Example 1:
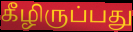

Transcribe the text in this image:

கீழிருப்பது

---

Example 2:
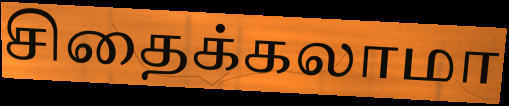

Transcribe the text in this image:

சிதைக்கலாமா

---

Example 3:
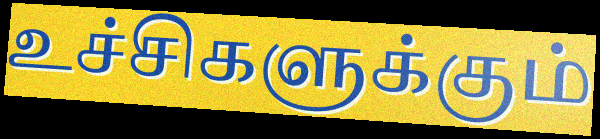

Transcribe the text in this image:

உச்சிகளுக்கும்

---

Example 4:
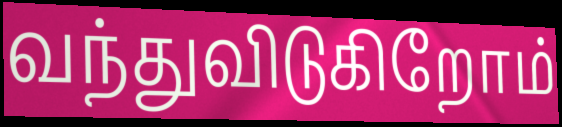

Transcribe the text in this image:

வந்துவிடுகிறோம்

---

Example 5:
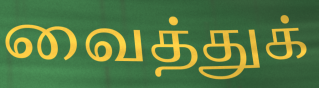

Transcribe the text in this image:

வைத்துக்